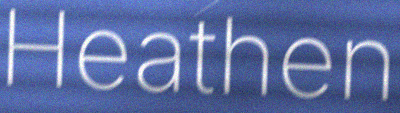
Heathen